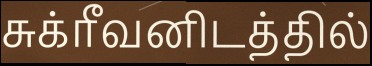
சுக்ரீவனிடத்தில்